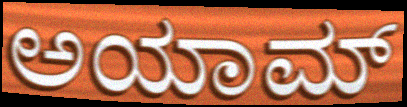
ಅಯಾಮ್